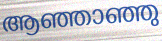
ആഞ്ഞാഞ്ഞു